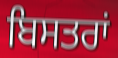
ਬਿਸਤਰਾਂ